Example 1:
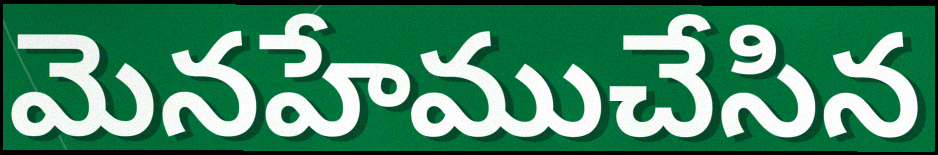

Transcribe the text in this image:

మెనహేముచేసిన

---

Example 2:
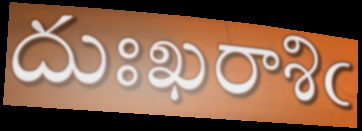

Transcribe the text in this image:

దుఃఖరాశిఁ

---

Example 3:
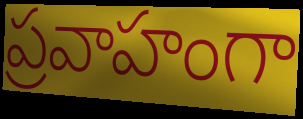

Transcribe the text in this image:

ప్రవాహంగా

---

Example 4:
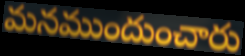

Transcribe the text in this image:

మనముందుంచారు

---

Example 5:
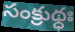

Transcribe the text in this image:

సంక్రుథ్ధః